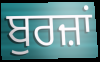
ਬੁਰਜ਼ਾਂ